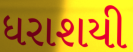
ધરાશયી